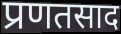
प्रणतसाद